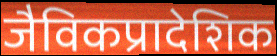
जैविकप्रादेशिक